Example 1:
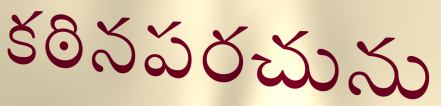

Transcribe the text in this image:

కఠినపరచును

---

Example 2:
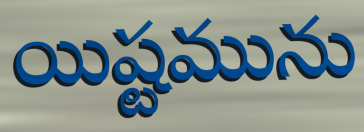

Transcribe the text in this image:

యిష్టమును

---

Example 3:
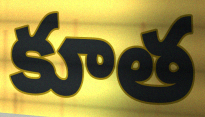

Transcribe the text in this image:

కూత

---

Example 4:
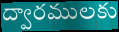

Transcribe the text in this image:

ద్వారములకు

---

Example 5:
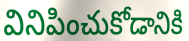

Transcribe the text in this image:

వినిపించుకోడానికి